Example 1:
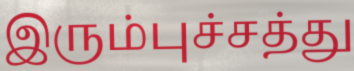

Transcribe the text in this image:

இரும்புச்சத்து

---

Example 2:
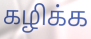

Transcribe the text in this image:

கழிக்க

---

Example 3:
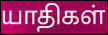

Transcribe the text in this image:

யாதிகள்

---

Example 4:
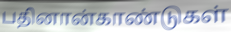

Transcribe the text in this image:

பதினான்காண்டுகள்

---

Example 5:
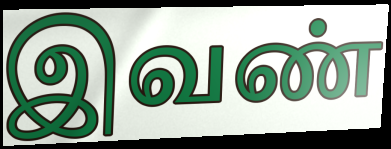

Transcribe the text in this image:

இவண்